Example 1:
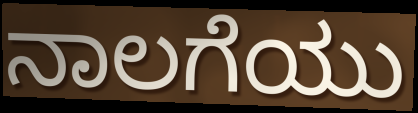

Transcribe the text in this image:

ನಾಲಗೆಯು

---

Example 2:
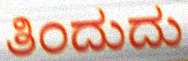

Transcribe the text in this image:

ತಿಂದುದು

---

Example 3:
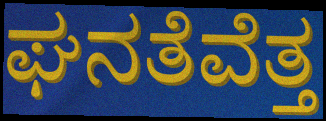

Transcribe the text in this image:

ಘನತೆವೆತ್ತ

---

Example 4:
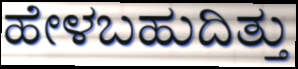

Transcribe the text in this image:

ಹೇಳಬಹುದಿತ್ತು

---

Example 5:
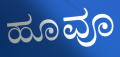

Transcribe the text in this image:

ಹೂವೂ